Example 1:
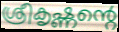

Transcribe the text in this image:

ശ്രീകൃഷ്ണന്റെ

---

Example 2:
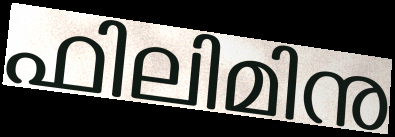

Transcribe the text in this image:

ഫിലിമിനു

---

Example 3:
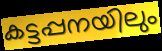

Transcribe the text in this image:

കട്ടപ്പനയിലും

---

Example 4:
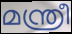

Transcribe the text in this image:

മന്ത്രീ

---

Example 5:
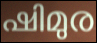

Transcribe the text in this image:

ഷിമുര